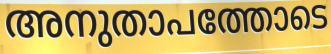
അനുതാപത്തോടെ